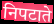
निपटाते